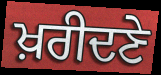
ਖ਼ਰੀਦਣੇ